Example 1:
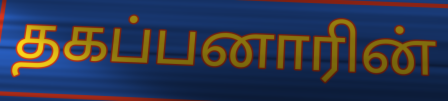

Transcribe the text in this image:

தகப்பனாரின்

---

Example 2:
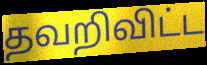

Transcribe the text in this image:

தவறிவிட்ட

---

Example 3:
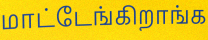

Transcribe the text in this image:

மாட்டேங்கிறாங்க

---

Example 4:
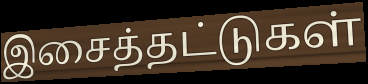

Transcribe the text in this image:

இசைத்தட்டுகள்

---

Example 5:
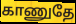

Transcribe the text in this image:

காணுதே